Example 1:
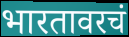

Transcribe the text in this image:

भारतावरचं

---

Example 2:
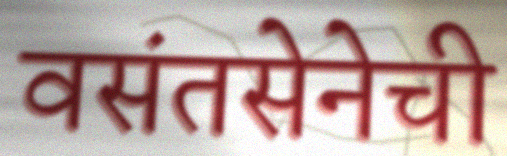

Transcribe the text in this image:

वसंतसेनेची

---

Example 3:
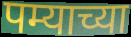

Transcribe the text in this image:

पम्याच्या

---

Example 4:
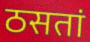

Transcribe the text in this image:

ठसतां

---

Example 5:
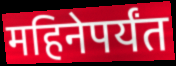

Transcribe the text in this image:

महिनेपर्यंत